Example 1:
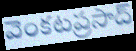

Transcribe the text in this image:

వెంకటప్రసాద్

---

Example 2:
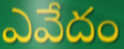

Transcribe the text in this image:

ఎవేదం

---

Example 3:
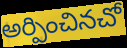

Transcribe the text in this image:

అర్పించినచో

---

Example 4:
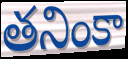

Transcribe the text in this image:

తనింకా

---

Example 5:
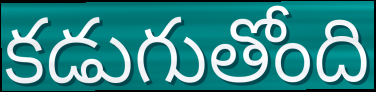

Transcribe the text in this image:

కడుగుతోంది